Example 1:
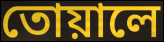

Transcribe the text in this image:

তোয়ালে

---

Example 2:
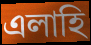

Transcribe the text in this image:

এলাহি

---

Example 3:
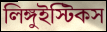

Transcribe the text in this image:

লিঙ্গুইস্টিকস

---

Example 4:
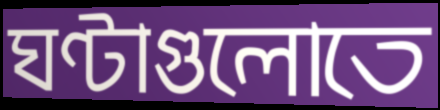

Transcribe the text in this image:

ঘণ্টাগুলোতে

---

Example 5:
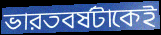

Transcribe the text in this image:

ভারতবর্ষটাকেই